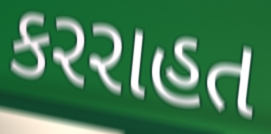
કરરાહત